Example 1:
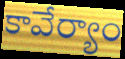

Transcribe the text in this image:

కావేర్యాం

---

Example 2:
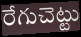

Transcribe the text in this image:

రేగుచెట్టు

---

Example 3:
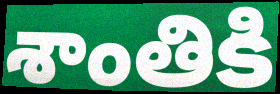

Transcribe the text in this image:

శాంతికి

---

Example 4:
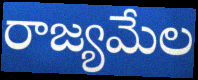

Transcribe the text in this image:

రాజ్యమేల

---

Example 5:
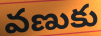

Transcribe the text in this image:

వణుకు